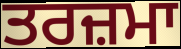
ਤਰਜ਼ਮਾ